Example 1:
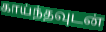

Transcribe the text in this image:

காய்ந்தவுடன்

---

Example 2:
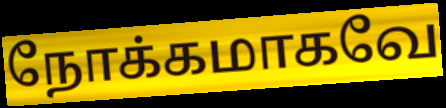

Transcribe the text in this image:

நோக்கமாகவே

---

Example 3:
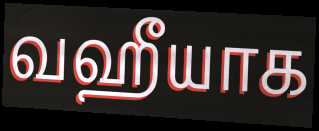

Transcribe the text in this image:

வஹீயாக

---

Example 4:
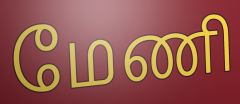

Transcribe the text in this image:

மேணி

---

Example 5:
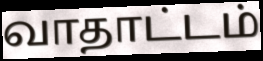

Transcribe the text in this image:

வாதாட்டம்